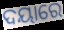
ଦୟାରେ